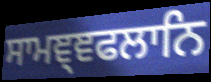
ਸਾਮਞ੍ਞਫਲਾਨਿ